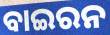
ବାଇରନ